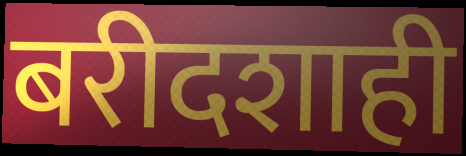
बरीदशाही